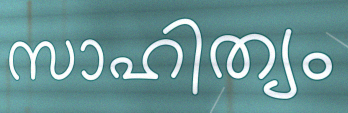
സാഹിത്യം